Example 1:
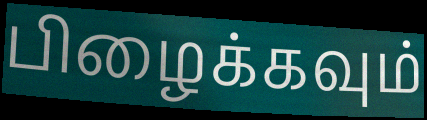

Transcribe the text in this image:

பிழைக்கவும்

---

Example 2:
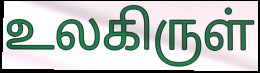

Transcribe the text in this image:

உலகிருள்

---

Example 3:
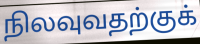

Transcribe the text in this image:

நிலவுவதற்குக்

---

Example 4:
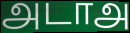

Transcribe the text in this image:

அடாஅ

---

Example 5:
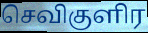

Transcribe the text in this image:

செவிகுளிர